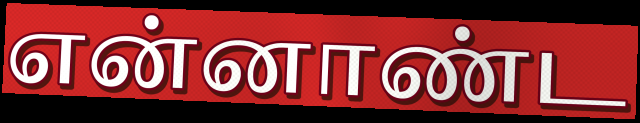
என்னாண்ட